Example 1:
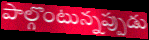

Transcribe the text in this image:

పాల్గొంటున్నప్పుడు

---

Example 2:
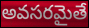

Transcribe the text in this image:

అవసరమైతే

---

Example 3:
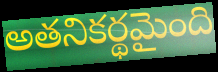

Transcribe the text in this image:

అతనికర్థమైంది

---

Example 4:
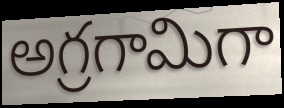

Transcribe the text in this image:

అగ్రగామిగా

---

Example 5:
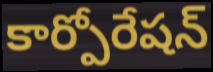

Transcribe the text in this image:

కార్పోరేషన్